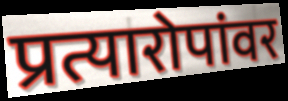
प्रत्यारोपांवर